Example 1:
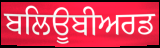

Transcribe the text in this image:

ਬਲਿਊਬੀਅਰਡ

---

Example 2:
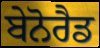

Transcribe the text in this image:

ਬੇਨੋਰੈਡ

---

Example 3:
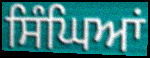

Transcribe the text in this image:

ਸਿੰਘਿਆਂ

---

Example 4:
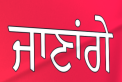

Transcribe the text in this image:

ਜਾਣਾਂਗੇ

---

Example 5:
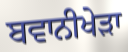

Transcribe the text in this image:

ਬਵਾਨੀਖੇੜਾ